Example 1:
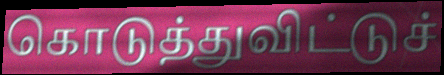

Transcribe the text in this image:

கொடுத்துவிட்டுச்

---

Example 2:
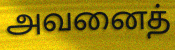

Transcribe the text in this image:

அவனைத்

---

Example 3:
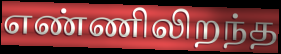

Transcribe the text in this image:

எண்ணிலிறந்த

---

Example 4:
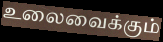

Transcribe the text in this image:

உலைவைக்கும்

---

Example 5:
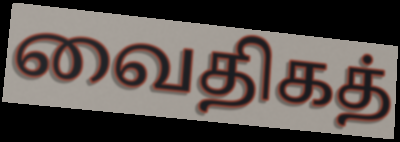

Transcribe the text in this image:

வைதிகத்